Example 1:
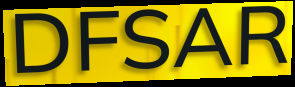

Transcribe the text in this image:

DFSAR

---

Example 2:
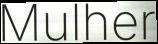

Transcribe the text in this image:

Mulher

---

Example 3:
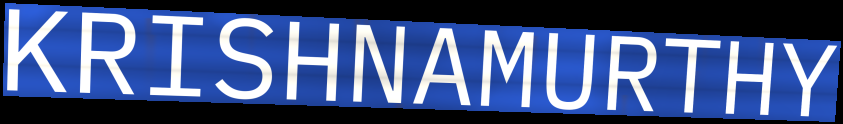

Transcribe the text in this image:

KRISHNAMURTHY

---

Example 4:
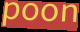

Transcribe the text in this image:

poon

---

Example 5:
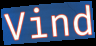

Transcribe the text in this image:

Vind